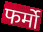
फर्मो